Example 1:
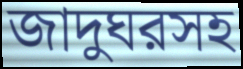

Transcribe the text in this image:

জাদুঘরসহ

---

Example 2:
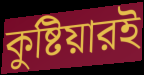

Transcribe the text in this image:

কুষ্টিয়ারই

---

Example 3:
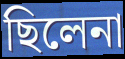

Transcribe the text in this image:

ছিলেনা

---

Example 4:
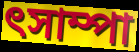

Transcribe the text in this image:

ৎসাম্পা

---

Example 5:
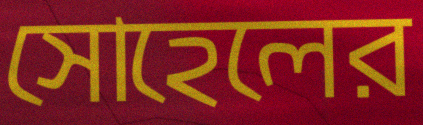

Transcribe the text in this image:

সোহেলের